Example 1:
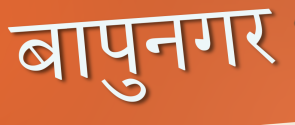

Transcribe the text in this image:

बापुनगर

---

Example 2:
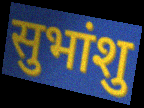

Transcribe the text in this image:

सुभांशु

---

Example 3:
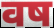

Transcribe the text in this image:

वष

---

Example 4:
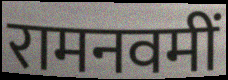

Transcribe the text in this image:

रामनवमीं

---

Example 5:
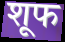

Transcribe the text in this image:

शूफ